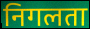
निगलता